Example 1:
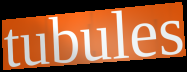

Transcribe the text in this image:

tubules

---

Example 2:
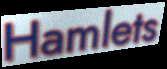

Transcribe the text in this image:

Hamlets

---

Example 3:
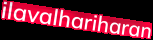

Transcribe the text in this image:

ilavalhariharan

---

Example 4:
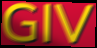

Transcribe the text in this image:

GIV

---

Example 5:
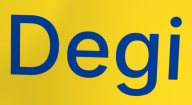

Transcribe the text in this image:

Degi